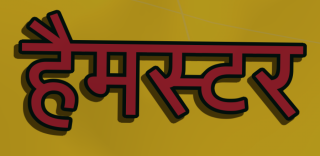
हैमस्टर